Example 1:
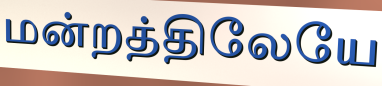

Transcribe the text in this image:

மன்றத்திலேயே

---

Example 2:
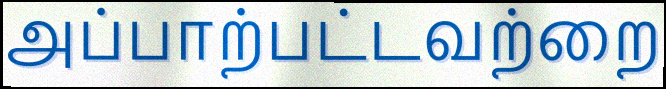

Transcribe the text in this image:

அப்பாற்பட்டவற்றை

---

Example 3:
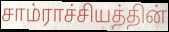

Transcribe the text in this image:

சாம்ராச்சியத்தின்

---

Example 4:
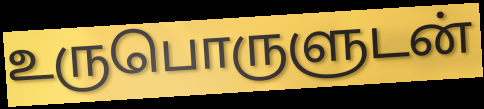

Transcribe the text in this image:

உருபொருளுடன்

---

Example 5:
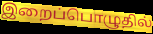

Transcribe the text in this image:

இறைப்பொழுதில்